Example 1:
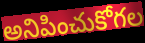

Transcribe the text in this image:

అనిపించుకోగల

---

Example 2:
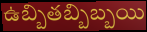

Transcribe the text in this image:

ఉబ్బితబ్బిబ్బయి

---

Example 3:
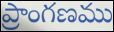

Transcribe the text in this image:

ప్రాంగణము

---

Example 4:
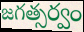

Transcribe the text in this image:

జగత్సర్వం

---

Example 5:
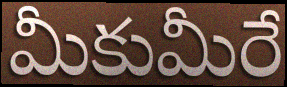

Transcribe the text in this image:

మీకుమీరే